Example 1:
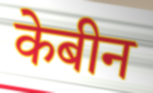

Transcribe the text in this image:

केबीन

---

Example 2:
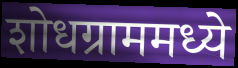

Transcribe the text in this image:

शोधग्राममध्ये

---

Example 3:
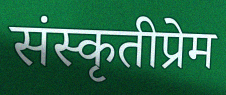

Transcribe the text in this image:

संस्कृतीप्रेम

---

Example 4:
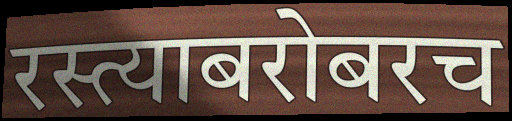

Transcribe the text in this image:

रस्त्याबरोबरच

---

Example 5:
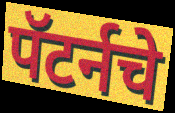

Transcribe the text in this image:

पॅटर्नचे